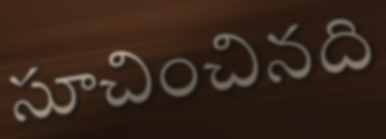
సూచించినది